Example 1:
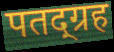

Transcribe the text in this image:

पतद्ग्रह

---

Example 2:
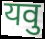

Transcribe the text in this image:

यवु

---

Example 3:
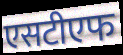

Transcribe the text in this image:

एसटीएफ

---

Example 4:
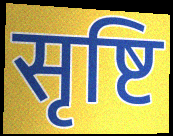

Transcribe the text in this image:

सृष्टि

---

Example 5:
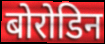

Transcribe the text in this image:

बोरोडिन